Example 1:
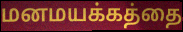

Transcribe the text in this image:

மனமயக்கத்தை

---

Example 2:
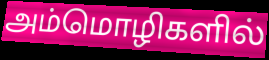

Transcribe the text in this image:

அம்மொழிகளில்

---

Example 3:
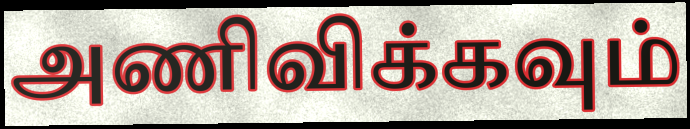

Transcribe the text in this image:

அணிவிக்கவும்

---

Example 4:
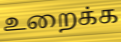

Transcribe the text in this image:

உறைக்க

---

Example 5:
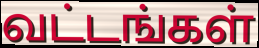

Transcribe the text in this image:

வட்டங்கள்